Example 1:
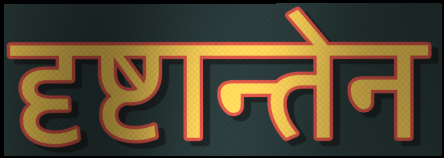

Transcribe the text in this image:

दृष्टान्तेन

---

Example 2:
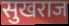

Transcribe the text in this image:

सुखराज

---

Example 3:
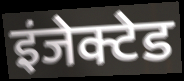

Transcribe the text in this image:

इंजेक्टेड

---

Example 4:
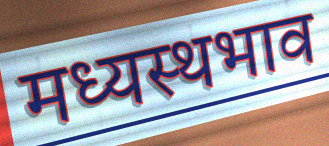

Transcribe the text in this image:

मध्यस्थभाव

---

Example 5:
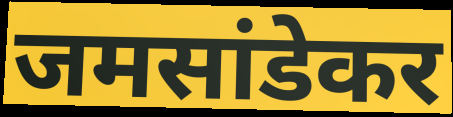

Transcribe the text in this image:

जमसांडेकर